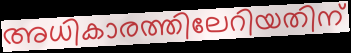
അധികാരത്തിലേറിയതിന്